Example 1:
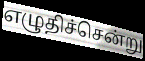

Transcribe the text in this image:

எழுதிச்சென்று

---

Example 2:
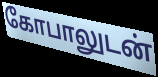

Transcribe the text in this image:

கோபாலுடன்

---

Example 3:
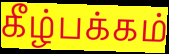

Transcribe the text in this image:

கீழ்பக்கம்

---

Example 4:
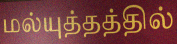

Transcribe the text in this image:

மல்யுத்தத்தில்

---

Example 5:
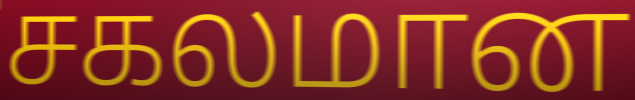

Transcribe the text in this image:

சகலமான